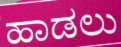
ಹಾಡಲು